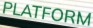
PLATFORM